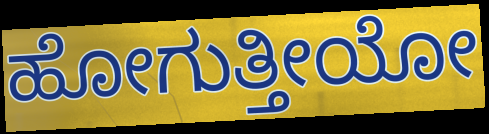
ಹೋಗುತ್ತೀಯೋ